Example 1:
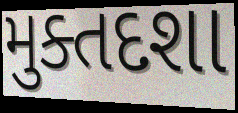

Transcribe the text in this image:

મુક્તદશા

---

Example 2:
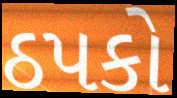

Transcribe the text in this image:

ઠપકો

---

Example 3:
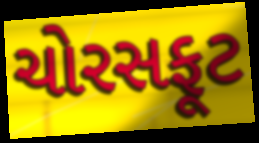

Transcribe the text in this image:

ચોરસફૂટ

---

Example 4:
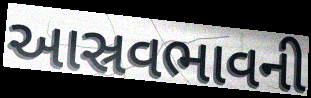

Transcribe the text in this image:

આસ્રવભાવની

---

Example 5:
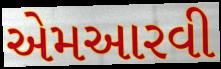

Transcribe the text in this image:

એમઆરવી